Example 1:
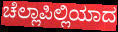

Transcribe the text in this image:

ಚೆಲ್ಲಾಪಿಲ್ಲಿಯಾದ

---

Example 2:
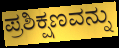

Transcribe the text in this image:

ಪ್ರಶಿಕ್ಷಣವನ್ನು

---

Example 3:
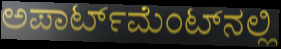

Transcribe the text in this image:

ಅಪಾರ್ಟ್‌ಮೆಂಟ್‌ನಲ್ಲಿ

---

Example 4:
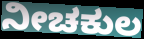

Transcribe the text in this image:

ನೀಚಕುಲ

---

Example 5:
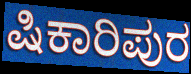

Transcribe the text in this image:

ಷಿಕಾರಿಪುರ